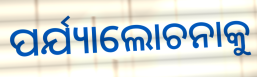
ପର୍ଯ୍ୟାଲୋଚନାକୁ